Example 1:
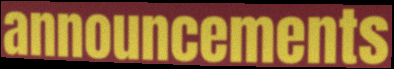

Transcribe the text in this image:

announcements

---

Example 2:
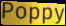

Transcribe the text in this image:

Poppy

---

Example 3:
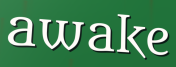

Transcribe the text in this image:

awake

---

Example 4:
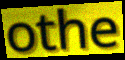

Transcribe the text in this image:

othe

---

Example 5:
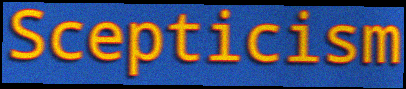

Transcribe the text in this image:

Scepticism